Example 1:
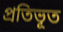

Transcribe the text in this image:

প্রতিভূত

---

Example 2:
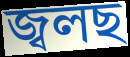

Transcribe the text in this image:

জ্বলছ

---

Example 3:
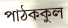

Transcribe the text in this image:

পাঠককুল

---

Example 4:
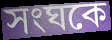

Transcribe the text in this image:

সংঘকে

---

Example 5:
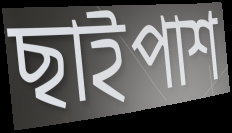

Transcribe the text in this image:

ছাইপাশ